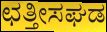
ಛತ್ತೀಸಘಡ